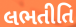
લભતીતિ